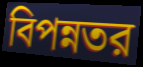
বিপন্নতর